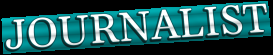
JOURNALIST